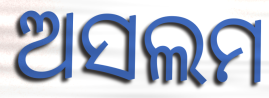
ଅସଲମ